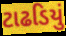
ટાઢડિયું